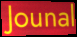
Jounal